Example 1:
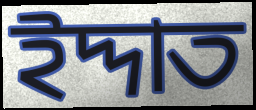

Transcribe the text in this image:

ইদ্দাত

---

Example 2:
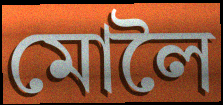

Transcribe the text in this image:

মোলৈ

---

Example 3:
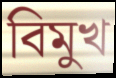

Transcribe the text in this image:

বিমুখ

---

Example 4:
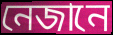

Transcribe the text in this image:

নেজানে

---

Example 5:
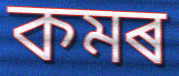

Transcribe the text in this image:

কমৰ